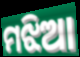
ମଝିଆ